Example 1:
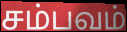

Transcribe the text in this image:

சம்பவம்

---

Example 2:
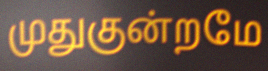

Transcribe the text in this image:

முதுகுன்றமே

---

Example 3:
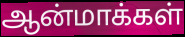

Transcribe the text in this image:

ஆன்மாக்கள்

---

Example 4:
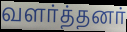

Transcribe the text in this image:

வளர்த்தனர்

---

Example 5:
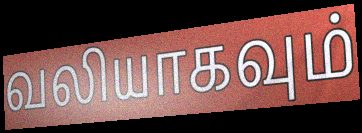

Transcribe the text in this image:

வலியாகவும்